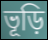
ভূড়ি